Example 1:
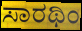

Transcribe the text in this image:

ಸಾರಥಿಂ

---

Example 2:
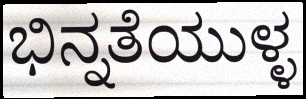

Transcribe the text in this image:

ಭಿನ್ನತೆಯುಳ್ಳ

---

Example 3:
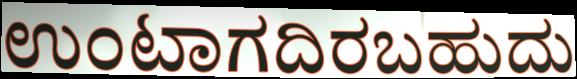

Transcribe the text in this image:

ಉಂಟಾಗದಿರಬಹುದು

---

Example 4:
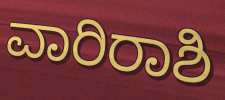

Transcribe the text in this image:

ವಾರಿರಾಶಿ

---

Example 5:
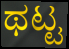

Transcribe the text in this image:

ಥಟ್ಟ